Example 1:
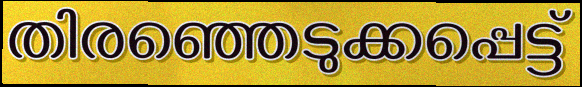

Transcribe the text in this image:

തിരഞ്ഞെടുക്കപ്പെട്ട്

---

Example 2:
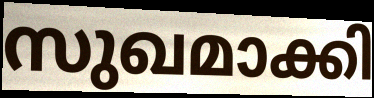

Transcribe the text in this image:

സുഖമാക്കി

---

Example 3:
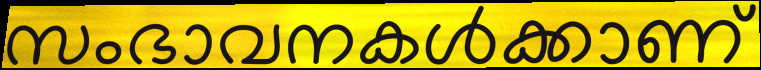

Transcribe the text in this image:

സംഭാവനകൾക്കാണ്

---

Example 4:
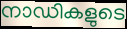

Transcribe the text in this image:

നാഡികളുടെ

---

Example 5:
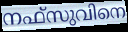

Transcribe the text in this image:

നഫ്സുവിനെ